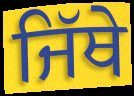
ਜਿੱਥੇ